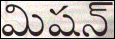
మిషన్